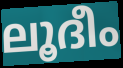
ലൂദീം